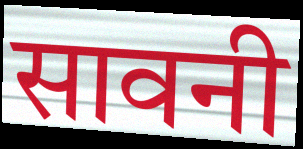
सावनी